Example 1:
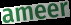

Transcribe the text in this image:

ameer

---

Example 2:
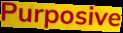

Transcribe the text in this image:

Purposive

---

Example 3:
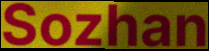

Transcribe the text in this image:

Sozhan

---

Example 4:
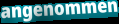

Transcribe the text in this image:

angenommen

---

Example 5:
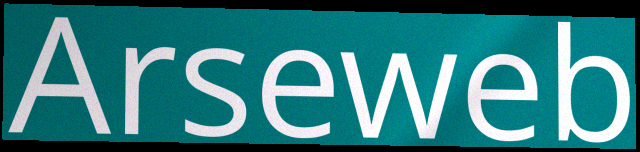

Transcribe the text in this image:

Arseweb